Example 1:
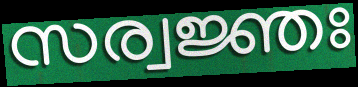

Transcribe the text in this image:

സര്വജ്ഞഃ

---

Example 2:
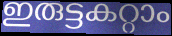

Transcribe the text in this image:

ഇരുട്ടകറ്റാം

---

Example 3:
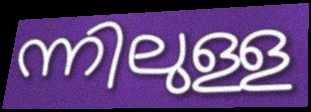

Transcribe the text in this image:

ന്നിലുള്ള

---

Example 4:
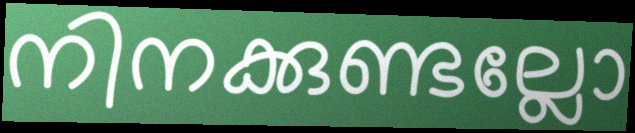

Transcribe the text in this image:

നിനക്കുണ്ടല്ലോ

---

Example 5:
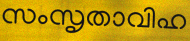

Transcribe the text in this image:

സംസൃതാവിഹ